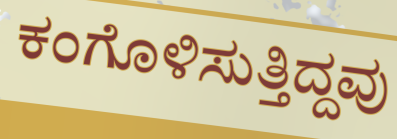
ಕಂಗೊಳಿಸುತ್ತಿದ್ದವು